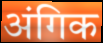
अंगिक